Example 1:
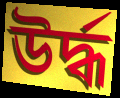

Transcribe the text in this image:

উৰ্দ্ধ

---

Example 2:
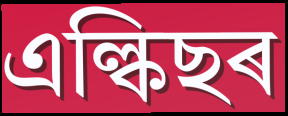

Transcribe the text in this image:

এল্কিছৰ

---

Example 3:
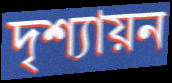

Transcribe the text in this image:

দৃশ্যায়ন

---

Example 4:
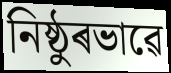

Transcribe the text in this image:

নিষ্ঠুৰভাৱে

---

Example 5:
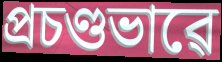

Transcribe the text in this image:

প্ৰচণ্ডভাৱে